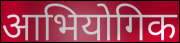
आभियोगिक